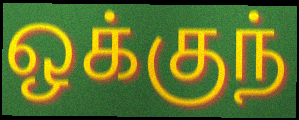
ஒக்குந்